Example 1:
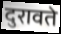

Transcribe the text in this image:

दुरावते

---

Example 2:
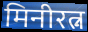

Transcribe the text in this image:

मिनीरत्न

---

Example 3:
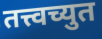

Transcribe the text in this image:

तत्त्वच्युत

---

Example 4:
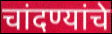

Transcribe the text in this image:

चांदण्यांचे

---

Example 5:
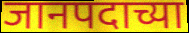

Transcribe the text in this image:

जानपदाच्या